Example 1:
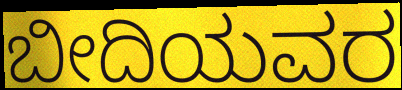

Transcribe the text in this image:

ಬೀದಿಯವರ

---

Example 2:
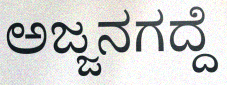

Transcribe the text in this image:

ಅಜ್ಜನಗದ್ದೆ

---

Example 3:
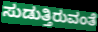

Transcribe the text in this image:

ಸುಡುತ್ತಿರುವಂತೆ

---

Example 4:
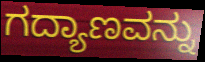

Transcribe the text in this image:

ಗದ್ಯಾಣವನ್ನು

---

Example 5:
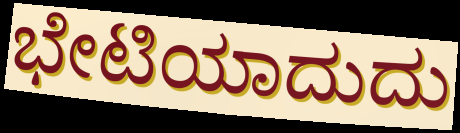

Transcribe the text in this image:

ಭೇಟಿಯಾದುದು